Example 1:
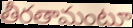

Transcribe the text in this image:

తీరతామంటూ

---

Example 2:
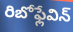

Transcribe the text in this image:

రిబోఫ్లేవిన్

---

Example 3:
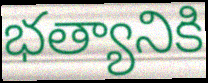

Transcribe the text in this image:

భత్యానికి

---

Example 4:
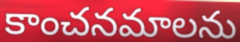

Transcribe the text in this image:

కాంచనమాలను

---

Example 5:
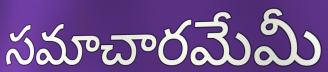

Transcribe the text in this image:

సమాచారమేమీ